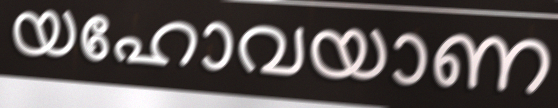
യഹോവയാണ